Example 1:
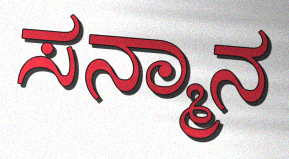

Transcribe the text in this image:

ಸನ್ಮಾನ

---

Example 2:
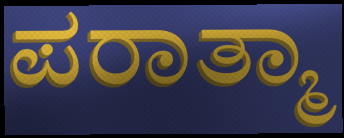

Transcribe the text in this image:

ಪರಾತ್ಮಾ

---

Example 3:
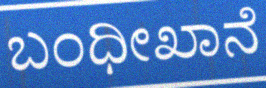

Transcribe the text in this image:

ಬಂಧೀಖಾನೆ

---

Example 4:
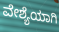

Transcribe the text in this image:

ವೇಶ್ಯೆಯಾಗಿ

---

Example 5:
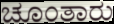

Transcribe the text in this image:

ಚೂಂತಾರು